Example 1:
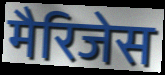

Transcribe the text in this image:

मैरिजेस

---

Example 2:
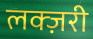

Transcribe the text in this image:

लक्ज़री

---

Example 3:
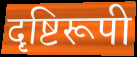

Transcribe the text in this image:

दृष्टिरूपी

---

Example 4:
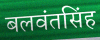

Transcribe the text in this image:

बलवंतसिंह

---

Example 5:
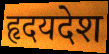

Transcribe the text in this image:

हृदयदेश